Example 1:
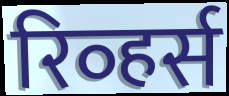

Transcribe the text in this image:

रिव्हर्स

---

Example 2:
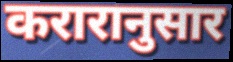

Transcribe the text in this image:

करारानुसार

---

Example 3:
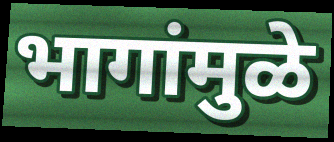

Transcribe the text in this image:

भागांमुळे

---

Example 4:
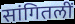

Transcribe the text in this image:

सांगितलीं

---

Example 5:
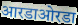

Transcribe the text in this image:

आरडाओरडा